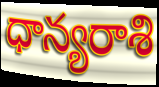
ధాన్యరాశి